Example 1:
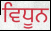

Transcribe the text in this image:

ਵਿਧੂਨ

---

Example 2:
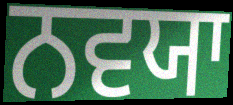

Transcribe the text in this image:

ਨਵਯਾ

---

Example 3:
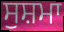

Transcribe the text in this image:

ਸੁਸ਼ਮਾ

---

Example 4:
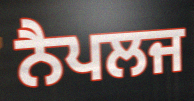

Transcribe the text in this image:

ਨੈਪਲਜ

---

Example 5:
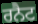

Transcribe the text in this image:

ਰਨੈਟ